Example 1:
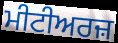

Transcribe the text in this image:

ਮੀਟੀਅਰਜ਼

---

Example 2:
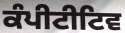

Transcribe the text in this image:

ਕੰਪੀਟੀਟਿਵ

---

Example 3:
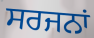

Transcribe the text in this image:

ਸਰਜਨਾਂ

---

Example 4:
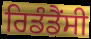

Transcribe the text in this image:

ਰਿਡੰਡੈਂਸੀ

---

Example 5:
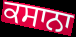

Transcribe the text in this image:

ਕਸਾਨਾ